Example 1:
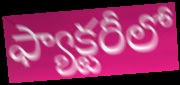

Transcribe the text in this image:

ఫ్యాక్టరీలో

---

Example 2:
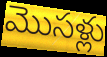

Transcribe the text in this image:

మొసళ్లు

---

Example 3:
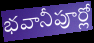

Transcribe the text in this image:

భవానీపూర్లో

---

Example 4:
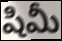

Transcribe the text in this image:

షిమీ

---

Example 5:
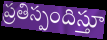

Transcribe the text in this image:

ప్రతిస్పందిస్తూ